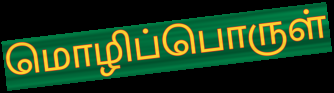
மொழிப்பொருள்